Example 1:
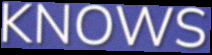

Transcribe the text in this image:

KNOWS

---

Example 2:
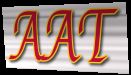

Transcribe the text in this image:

AAT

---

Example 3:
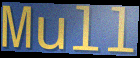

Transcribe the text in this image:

Mull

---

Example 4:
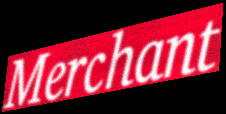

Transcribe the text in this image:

Merchant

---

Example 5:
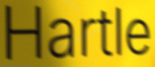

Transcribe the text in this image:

Hartle